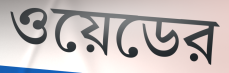
ওয়েডের